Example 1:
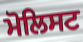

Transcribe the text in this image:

ਮੋਲਿਸਟ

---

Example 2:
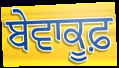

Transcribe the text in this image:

ਬੇਵਾਕੂਫ਼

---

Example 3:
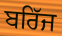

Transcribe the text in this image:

ਬਰਿੱਜ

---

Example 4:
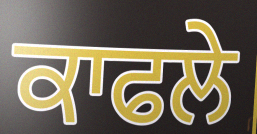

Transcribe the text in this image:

ਕਾਫਲੇ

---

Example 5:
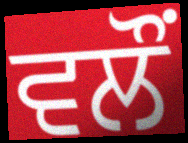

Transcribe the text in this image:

ਵਲੌੰ